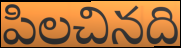
పిలచినది